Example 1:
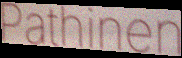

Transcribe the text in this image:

Pathinen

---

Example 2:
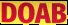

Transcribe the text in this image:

DOAB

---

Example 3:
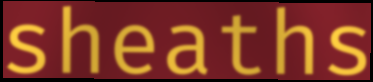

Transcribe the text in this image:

sheaths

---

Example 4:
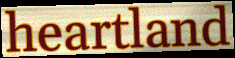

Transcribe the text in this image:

heartland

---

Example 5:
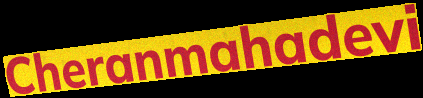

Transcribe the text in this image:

Cheranmahadevi